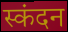
स्कंदन